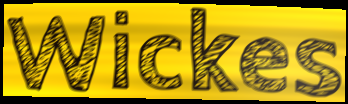
Wickes